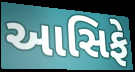
આસિફે